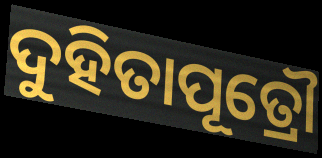
ଦୁହିତାପୂତ୍ରୌ